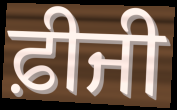
ਫ਼ੀਜੀ